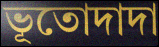
ভূতোদাদা